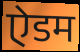
ऐडम